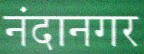
नंदानगर